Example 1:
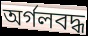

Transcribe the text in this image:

অর্গলবদ্ধ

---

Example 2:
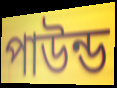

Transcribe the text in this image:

পাউন্ড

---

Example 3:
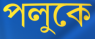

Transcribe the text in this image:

পলুকে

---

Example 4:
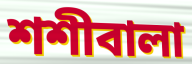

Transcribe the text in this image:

শশীবালা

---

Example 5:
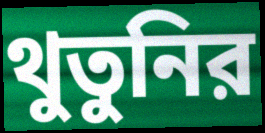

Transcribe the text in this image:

থুতুনির